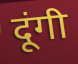
दूंगी